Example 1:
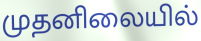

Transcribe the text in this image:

முதனிலையில்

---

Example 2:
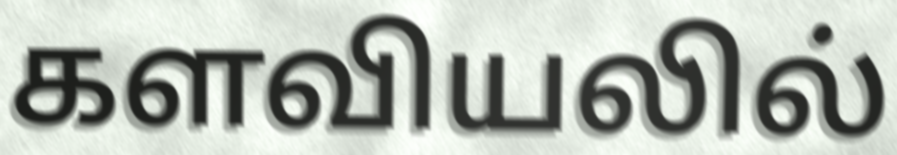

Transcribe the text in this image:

களவியலில்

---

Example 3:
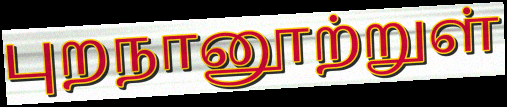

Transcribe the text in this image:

புறநானூற்றுள்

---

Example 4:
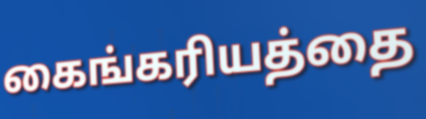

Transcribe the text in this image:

கைங்கரியத்தை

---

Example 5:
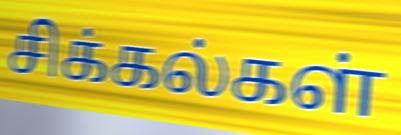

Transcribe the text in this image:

சிக்கல்கள்